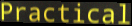
Practical